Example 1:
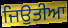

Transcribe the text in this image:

ਜਿਉਤੀਆ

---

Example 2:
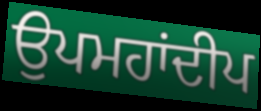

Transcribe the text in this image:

ਉਪਮਹਾਂਦੀਪ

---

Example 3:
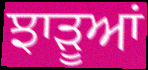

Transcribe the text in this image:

ਝਾੜੂਆਂ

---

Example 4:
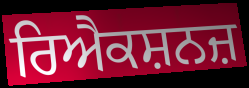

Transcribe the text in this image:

ਰਿਐਕਸ਼ਨਜ਼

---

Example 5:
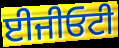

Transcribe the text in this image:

ਈਜੀਓਟੀ